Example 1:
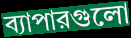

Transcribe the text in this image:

ব্যাপারগুলো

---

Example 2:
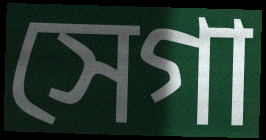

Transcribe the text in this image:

সেগা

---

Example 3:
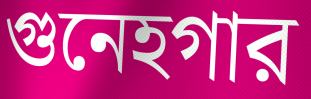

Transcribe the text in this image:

গুনেহগার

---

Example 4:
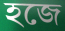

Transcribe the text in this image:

হজে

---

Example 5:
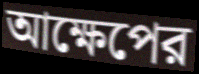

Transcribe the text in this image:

আক্ষেপের